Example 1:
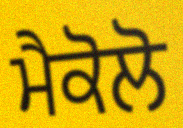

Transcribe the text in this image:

ਮੈਕੋਲੋ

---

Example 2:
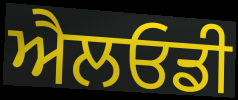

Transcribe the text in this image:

ਐਲਓਡੀ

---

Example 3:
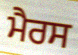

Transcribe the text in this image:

ਮੈਰਸ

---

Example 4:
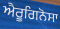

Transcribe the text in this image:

ਐਰੂਗਿਨੋਸਾ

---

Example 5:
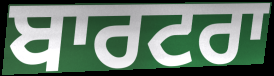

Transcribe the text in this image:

ਬਾਰਟਰਾ